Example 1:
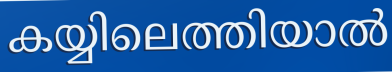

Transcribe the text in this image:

കയ്യിലെത്തിയാൽ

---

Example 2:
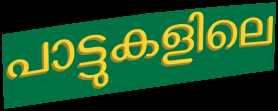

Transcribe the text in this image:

പാട്ടുകളിലെ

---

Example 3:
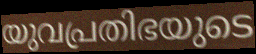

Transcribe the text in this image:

യുവപ്രതിഭയുടെ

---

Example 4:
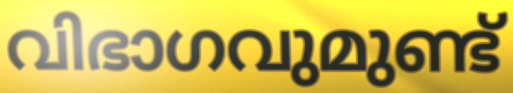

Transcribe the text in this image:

വിഭാഗവുമുണ്ട്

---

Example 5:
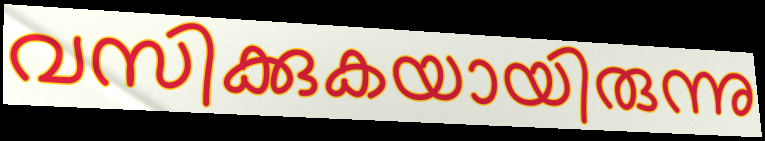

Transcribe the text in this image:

വസിക്കുകയായിരുന്നു